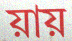
য়ায়